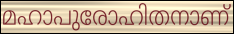
മഹാപുരോഹിതനാണ്